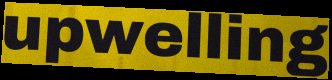
upwelling